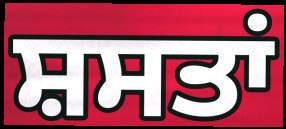
ਸ਼ਸਤਾਂ